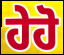
ਹੇਹੋ